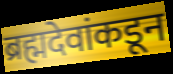
ब्रह्मदेवांकडून